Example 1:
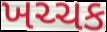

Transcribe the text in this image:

ખચ્ચક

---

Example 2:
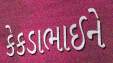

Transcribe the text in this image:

કેકડાભાઈને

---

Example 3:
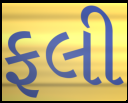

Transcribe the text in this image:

ફલી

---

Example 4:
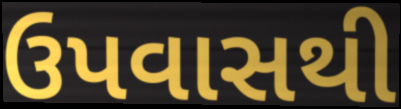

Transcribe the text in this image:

ઉપવાસથી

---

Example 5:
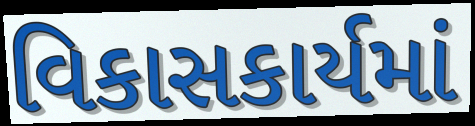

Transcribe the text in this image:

વિકાસકાર્યમાં